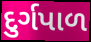
દુર્ગપાળ